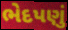
ભેદપણું